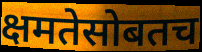
क्षमतेसोबतच